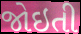
જોઇતી